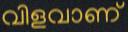
വിളവാണ്